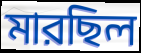
মারছিল